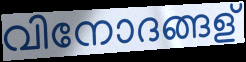
വിനോദങ്ങള്